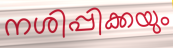
നശിപ്പിക്കയും